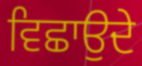
ਵਿਛਾਉਦੇ